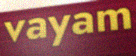
vayam